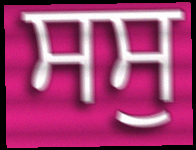
ਸਸੁ